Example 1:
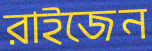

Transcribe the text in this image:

রাইজেন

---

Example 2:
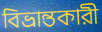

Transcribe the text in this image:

বিভ্রান্তকারী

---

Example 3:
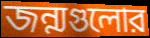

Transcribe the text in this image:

জন্মগুলোর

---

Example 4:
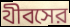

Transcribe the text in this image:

থীবসের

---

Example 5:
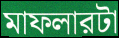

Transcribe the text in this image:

মাফলারটা